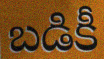
బడికీ